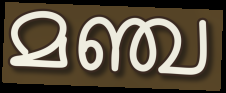
മഞ്ച